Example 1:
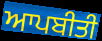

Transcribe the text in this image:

ਆਪਬੀਤੀ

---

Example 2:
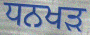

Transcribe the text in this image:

ਧਨਖੜ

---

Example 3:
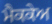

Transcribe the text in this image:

ਮੈਕਕੇਅ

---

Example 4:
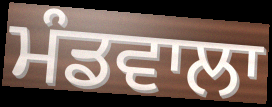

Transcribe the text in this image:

ਮੰਡਵਾਲਾ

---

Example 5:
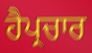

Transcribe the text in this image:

ਹੈਪ੍ਰਚਾਰ